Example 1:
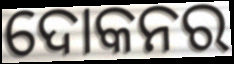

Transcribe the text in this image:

ଦୋକନର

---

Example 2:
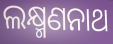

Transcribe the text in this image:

ଲକ୍ଷ୍ମଣନାଥ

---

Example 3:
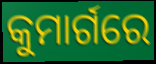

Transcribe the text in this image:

କୁମାର୍ଗରେ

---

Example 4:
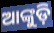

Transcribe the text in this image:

ଆଙ୍କୁଡ଼ି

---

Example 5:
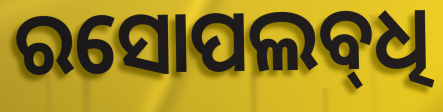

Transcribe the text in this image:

ରସୋପଲବ୍‌ଧି